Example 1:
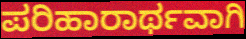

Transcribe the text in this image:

ಪರಿಹಾರಾರ್ಥವಾಗಿ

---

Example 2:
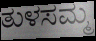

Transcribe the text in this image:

ತುಳಸಮ್ಮ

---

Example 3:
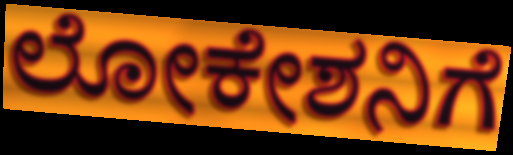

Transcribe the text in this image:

ಲೋಕೇಶನಿಗೆ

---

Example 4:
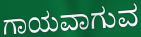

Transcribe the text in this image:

ಗಾಯವಾಗುವ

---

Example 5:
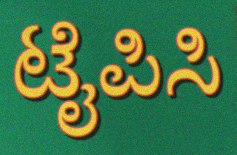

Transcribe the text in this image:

ಟೈಪಿಸಿ